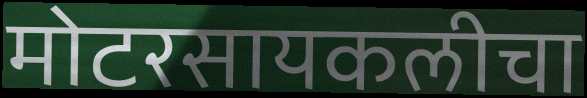
मोटरसायकलीचा